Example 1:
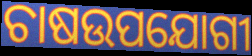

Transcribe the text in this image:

ଚାଷଉପଯୋଗୀ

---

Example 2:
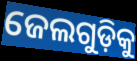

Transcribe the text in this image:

ଜେଲଗୁଡ଼ିକୁ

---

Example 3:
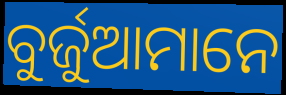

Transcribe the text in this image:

ବୁର୍ଜୁଆମାନେ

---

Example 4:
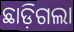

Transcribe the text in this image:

ଛାଡ଼ିଗଲା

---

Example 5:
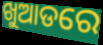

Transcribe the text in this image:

ଖୁଆଡରେ